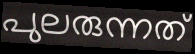
പുലരുന്നത്